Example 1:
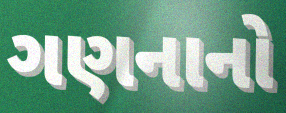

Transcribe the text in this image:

ગણનાનો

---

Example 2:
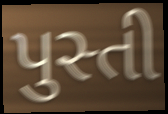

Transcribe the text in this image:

પુસ્તી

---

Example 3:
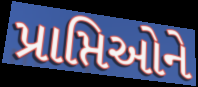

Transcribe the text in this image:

પ્રાપ્તિઓને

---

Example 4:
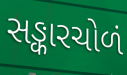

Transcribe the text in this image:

સઙ્કારચોળં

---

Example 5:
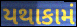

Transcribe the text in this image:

યથાકામં